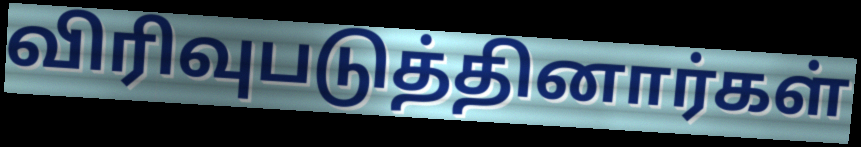
விரிவுபடுத்தினார்கள்